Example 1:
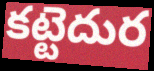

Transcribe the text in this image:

కట్టెదుర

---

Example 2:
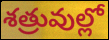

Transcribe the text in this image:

శత్రువుల్లో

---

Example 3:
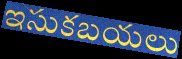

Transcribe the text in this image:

ఇసుకబయలు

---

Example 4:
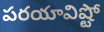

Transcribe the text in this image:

పరయావిష్టో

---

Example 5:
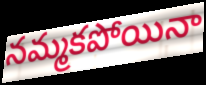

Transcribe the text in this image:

నమ్మకపోయినా